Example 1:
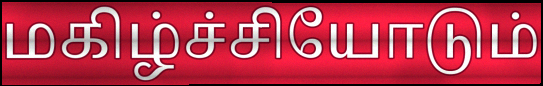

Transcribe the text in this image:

மகிழ்ச்சியோடும்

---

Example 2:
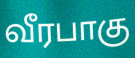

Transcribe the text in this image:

வீரபாகு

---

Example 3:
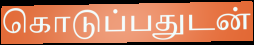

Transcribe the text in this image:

கொடுப்பதுடன்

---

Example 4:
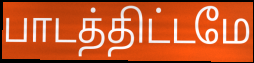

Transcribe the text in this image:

பாடத்திட்டமே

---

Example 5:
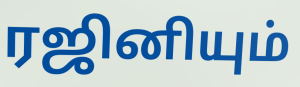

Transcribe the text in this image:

ரஜினியும்